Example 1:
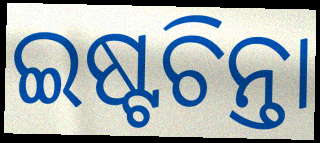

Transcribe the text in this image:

ଇଷ୍ଟଚିନ୍ତା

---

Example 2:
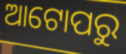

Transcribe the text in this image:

ଆଟୋପରୁ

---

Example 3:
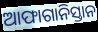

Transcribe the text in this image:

ଆଫାଗାନିସ୍ତାନ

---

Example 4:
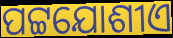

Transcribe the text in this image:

ପଟ୍ଟଯୋଶୀଏ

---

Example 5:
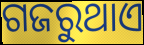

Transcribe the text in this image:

ଗଜରୁଥାଏ